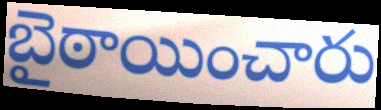
బైఠాయించారు